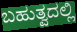
ಬಹುತ್ವದಲ್ಲಿ